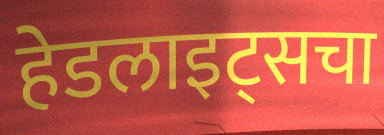
हेडलाइट्सचा